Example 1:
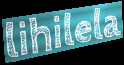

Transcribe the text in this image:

lihilela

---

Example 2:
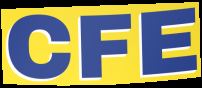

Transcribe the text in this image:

CFE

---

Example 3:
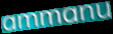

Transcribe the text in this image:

ammanu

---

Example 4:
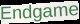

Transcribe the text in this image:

Endgame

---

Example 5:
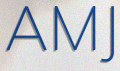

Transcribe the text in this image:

AMJ